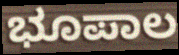
ಭೂಪಾಲ